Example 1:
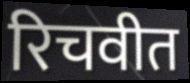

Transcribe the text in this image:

रिचवीत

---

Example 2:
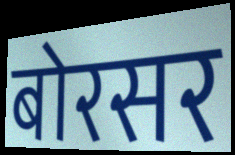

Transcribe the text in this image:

बोरसर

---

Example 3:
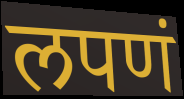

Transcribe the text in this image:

लपणं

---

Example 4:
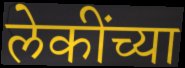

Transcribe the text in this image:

लेकींच्या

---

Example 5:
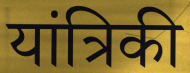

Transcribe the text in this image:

यांत्रिकी